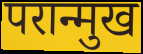
परान्मुख